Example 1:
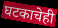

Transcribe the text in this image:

घटकाचेही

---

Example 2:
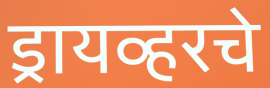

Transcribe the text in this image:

ड्रायव्हरचे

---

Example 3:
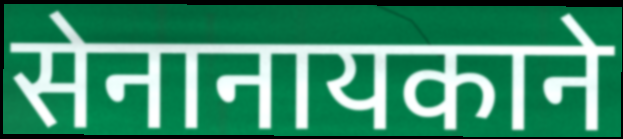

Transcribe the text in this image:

सेनानायकाने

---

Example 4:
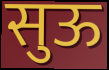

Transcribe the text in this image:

सुऊ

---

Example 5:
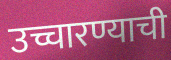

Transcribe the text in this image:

उच्चारण्याची